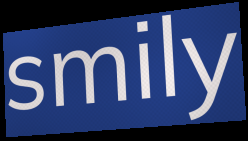
smily